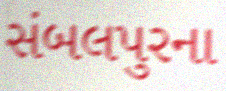
સંબલપુરના